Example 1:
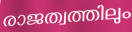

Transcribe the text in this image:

രാജത്വത്തിലും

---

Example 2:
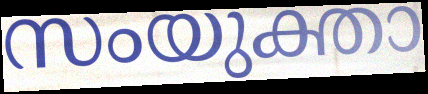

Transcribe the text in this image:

സംയുക്താ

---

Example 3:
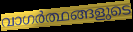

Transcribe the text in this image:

വാഗർത്ഥങ്ങളുടെ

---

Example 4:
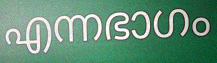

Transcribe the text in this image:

എന്നഭാഗം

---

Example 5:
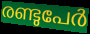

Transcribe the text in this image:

രണ്ടുപേർ